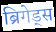
ब्रिगेड्स